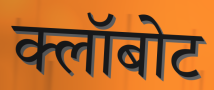
क्लॉबोट